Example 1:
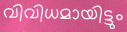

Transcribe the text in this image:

വിവിധമായിട്ടും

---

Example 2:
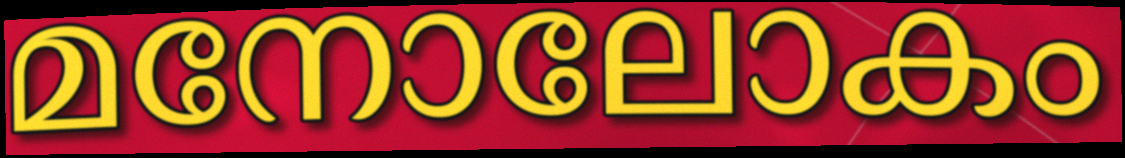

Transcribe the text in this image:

മനോലോകം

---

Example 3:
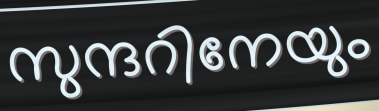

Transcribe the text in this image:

സുന്ദറിനേയും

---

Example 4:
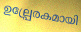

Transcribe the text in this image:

ഉല്പ്രേരകമായി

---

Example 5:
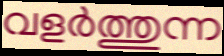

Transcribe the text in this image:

വളർത്തുന്ന